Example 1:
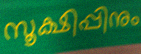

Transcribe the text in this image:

സൂക്ഷിപ്പിനും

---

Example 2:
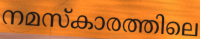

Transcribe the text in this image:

നമസ്കാരത്തിലെ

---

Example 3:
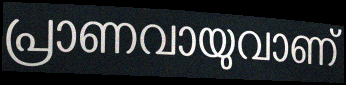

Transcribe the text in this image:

പ്രാണവായുവാണ്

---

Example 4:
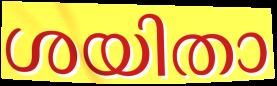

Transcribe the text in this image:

ശയിതാ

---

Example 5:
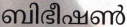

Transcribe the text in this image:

ബിഭീഷൺ